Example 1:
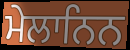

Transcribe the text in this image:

ਮੇਲਾਨਿਨ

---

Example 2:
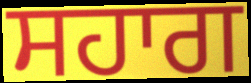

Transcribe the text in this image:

ਸਹਾਗ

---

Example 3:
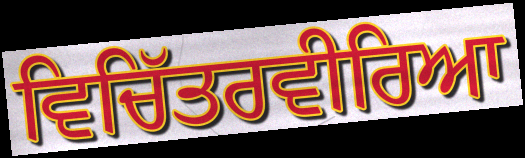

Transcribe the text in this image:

ਵਿਚਿੱਤਰਵੀਰਿਆ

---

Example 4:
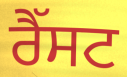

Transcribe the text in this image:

ਰੈੱਸਟ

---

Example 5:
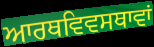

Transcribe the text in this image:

ਆਰਥਵਿਵਸਥਾਵਾਂ